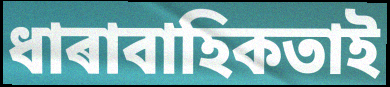
ধাৰাবাহিকতাই